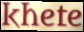
khete